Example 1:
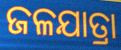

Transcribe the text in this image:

ଜଳଯାତ୍ରା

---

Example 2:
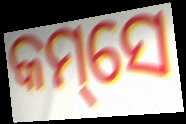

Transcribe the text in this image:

କମ୍‌ସେ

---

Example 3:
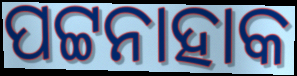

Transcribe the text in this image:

ପଟ୍ଟନାହାକ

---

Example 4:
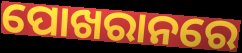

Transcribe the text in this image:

ପୋଖରାନରେ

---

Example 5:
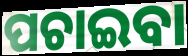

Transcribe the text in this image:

ପଚାଇବା